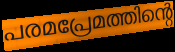
പരമപ്രേമത്തിന്റെ